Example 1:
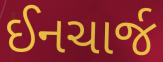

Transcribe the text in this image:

ઈનચાર્જ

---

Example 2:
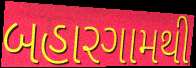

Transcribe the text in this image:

બહારગામથી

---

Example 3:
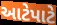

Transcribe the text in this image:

આટેપાટે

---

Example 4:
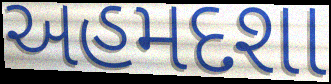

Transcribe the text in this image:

અહમદશા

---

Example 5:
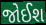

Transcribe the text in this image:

જોઈશ